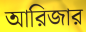
আরিজার